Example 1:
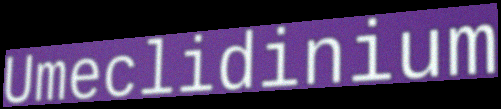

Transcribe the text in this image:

Umeclidinium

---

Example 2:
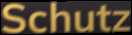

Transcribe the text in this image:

Schutz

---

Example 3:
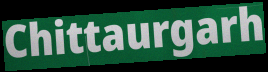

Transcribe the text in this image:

Chittaurgarh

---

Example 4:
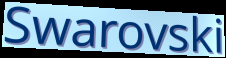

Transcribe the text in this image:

Swarovski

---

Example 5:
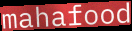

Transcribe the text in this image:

mahafood